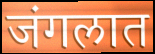
जंगलात